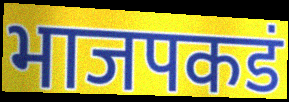
भाजपकडं